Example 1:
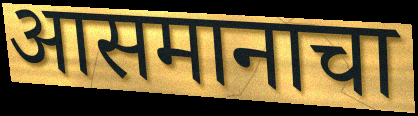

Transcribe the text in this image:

आसमानाचा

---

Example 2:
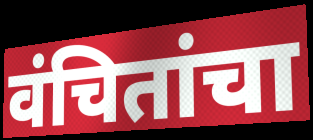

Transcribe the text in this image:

वंचितांचा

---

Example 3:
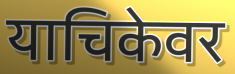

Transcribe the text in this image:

याचिकेवर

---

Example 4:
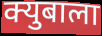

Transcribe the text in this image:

क्युबाला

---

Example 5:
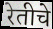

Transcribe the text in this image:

रेतीचे